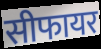
सीफायर